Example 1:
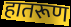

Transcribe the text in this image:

हातरूण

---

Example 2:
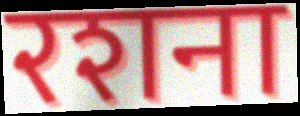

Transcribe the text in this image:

रशना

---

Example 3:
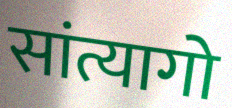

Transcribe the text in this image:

सांत्यागो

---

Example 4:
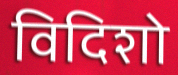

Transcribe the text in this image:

विदिशो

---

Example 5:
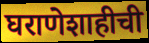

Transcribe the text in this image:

घराणेशाहीची